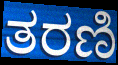
ತರಣಿ